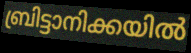
ബ്രിട്ടാനിക്കയിൽ